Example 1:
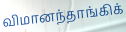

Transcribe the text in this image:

விமானந்தாங்கிக்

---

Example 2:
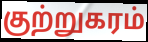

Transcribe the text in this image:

குற்றுகரம்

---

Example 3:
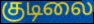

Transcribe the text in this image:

குடிலை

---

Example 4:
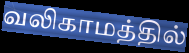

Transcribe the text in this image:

வலிகாமத்தில்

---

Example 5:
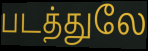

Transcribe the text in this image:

படத்துலே